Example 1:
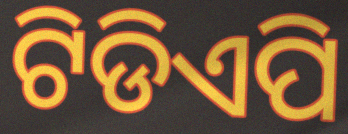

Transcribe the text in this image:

ଟିଡିଏପି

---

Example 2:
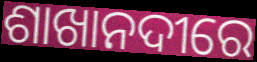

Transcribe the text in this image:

ଶାଖାନଦୀରେ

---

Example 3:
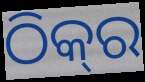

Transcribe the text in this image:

ଠିକ୍‍ର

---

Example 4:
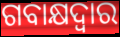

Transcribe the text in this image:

ଗବାକ୍ଷଦ୍ୱାର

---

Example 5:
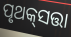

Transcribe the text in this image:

ପୃଥକ୍‌ସତ୍ତା